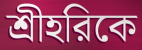
শ্রীহরিকে